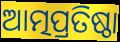
ଆତ୍ମପ୍ରତିଷ୍ଠା